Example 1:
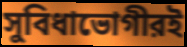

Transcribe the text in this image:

সুবিধাভোগীরই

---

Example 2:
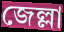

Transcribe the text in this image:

জেল্লা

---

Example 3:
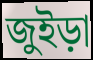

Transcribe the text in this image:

জুইড়া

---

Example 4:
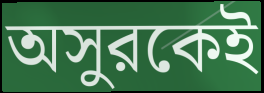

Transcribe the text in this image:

অসুরকেই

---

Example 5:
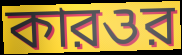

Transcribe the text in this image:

কারওর